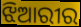
ଝିଆରୀର